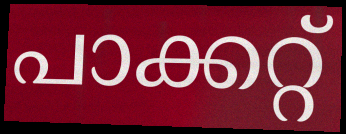
പാക്കറ്റ്